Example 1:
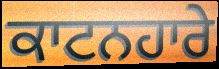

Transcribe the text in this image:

ਕਾਟਨਹਾਰੇ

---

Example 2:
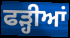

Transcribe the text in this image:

ਫੜ੍ਹੀਆਂ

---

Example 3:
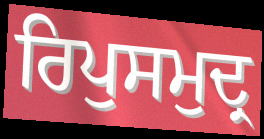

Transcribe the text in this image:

ਰਿਪੁਸਮੁਦ੍ਰ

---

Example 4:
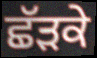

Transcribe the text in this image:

ਛੱੜਕੇ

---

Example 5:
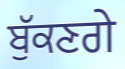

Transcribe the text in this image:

ਬੁੱਕਣਗੇ